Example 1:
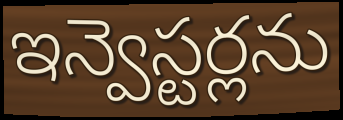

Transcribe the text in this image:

ఇన్వెస్టర్లను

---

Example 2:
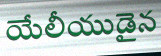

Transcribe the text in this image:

యేలీయుడైన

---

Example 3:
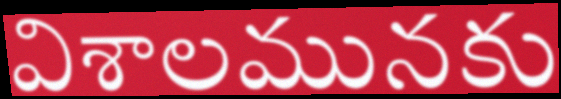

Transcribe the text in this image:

విశాలమునకు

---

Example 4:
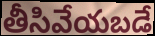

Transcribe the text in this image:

తీసివేయబడే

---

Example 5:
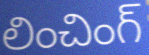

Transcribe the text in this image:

లించింగ్